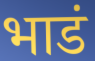
भाडं